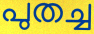
പുതച്ച